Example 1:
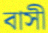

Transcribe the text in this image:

বাসী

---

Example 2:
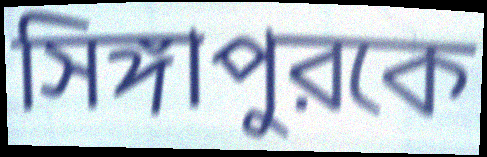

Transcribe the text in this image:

সিঙ্গাপুরকে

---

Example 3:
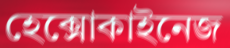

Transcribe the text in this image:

হেক্সোকাইনেজ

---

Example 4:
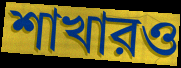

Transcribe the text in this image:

শাখারও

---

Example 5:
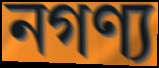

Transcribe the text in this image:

নগণ্য